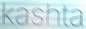
kashta